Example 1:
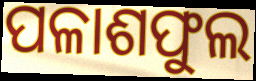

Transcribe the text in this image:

ପଳାଶଫୁଲ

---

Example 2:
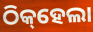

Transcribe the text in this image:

ଠିକ୍‌ହେଲା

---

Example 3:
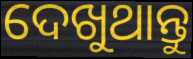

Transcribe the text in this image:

ଦେଖୁଥାନ୍ତୁ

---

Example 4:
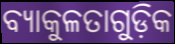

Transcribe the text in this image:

ବ୍ୟାକୁଳତାଗୁଡ଼ିକ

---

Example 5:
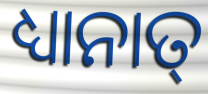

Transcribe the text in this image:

ଧ୍ୟାନାତ୍